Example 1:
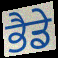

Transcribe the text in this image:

ਭੈਡੇ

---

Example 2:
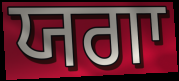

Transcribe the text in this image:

ਯਗਾ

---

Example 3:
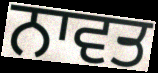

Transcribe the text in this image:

ਨਾਵਤ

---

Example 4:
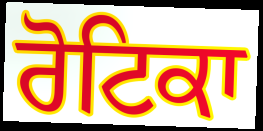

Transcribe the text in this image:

ਰੋਟਿਕਾ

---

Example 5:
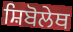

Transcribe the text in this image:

ਸ਼ਿਬੋਲੇਥ